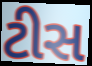
ટીસ